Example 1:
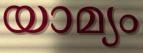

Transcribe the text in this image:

യാമ്യം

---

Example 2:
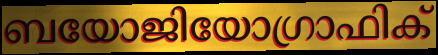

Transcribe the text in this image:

ബയോജിയോഗ്രാഫിക്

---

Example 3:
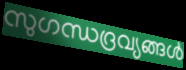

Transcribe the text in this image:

സുഗന്ധദ്രവ്യങ്ങൾ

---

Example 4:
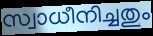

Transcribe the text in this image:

സ്വാധീനിച്ചതും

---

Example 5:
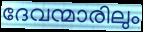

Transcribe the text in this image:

ദേവന്മാരിലും